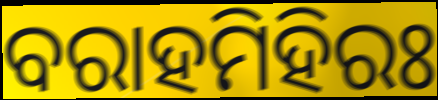
ବରାହମିହିରଃ